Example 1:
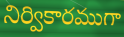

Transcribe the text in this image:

నిర్వికారముగా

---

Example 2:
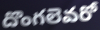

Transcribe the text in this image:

దొంగలెవరో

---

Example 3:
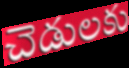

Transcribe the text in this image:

చెడులకు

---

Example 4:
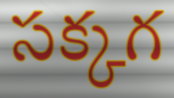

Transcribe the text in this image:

సక్కగ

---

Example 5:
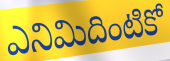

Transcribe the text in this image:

ఎనిమిదింటికో